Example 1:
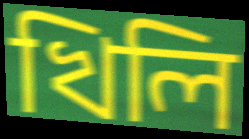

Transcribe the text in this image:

খিলি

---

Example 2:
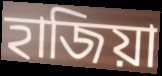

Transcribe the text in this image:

হাজিয়া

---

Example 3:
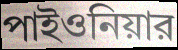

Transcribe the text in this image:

পাইওনিয়ার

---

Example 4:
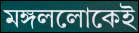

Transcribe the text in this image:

মঙ্গললোকেই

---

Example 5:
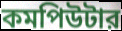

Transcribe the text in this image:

কমপিউটার